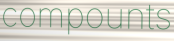
compounts